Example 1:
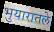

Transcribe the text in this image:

भुयारातले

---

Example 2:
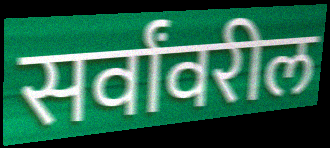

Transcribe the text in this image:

सर्वांवरील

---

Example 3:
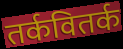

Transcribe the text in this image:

तर्कवितर्क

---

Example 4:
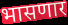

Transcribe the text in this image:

भासणार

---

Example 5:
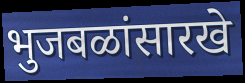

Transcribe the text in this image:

भुजबळांसारखे